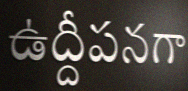
ఉద్దీపనగా